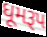
ધૂમરૂપ